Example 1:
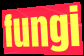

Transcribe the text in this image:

fungi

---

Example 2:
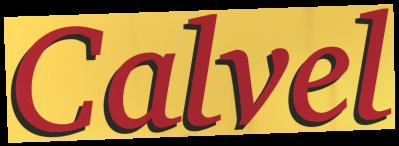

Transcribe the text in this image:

Calvel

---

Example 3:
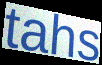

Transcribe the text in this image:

tahs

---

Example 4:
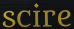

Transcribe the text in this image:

scire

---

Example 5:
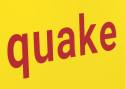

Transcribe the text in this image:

quake